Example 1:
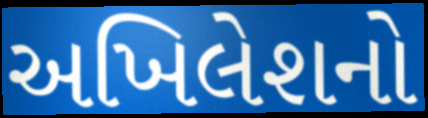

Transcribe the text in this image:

અખિલેશનો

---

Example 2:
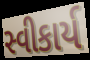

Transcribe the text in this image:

સ્વીકાર્ય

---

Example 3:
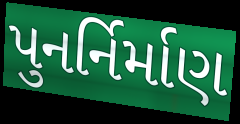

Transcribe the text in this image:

પુનર્નિર્માણ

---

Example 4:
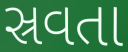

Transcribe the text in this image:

સ્રવતા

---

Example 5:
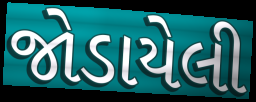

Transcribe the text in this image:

જોડાયેલી